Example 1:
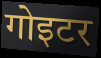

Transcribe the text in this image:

गोइटर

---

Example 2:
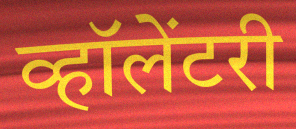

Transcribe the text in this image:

व्हॉलेंटरी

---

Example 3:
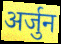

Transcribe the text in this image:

अर्जुन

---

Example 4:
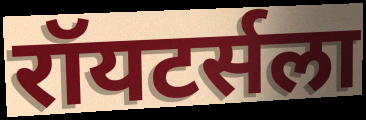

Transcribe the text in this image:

रॉयटर्सला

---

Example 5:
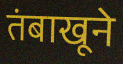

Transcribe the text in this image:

तंबाखूने